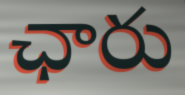
ఛారు